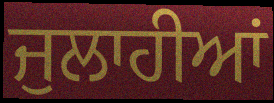
ਜੁਲਾਹੀਆਂ